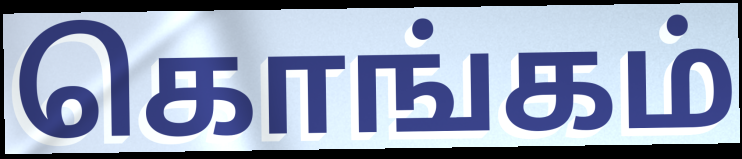
கொங்கம்